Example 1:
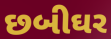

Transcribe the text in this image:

છબીઘર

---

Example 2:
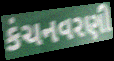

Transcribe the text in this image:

કંચનવરણી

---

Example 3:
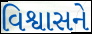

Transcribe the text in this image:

વિશ્વાસને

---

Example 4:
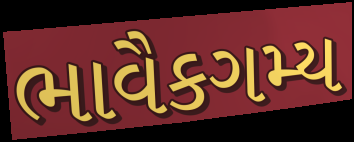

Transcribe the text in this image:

ભાવૈકગમ્ય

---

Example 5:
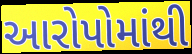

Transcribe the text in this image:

આરોપોમાંથી